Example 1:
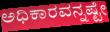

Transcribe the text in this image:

ಅಧಿಕಾರವನ್ನಷ್ಟೇ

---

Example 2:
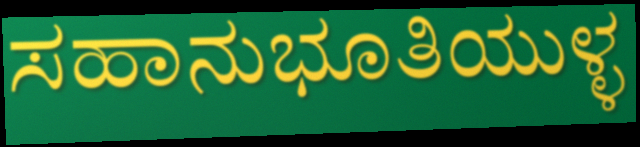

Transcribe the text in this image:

ಸಹಾನುಭೂತಿಯುಳ್ಳ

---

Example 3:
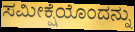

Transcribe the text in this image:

ಸಮೀಕ್ಷೆಯೊಂದನ್ನು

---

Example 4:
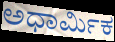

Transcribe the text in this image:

ಅಧಾರ್ಮಿಕ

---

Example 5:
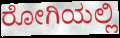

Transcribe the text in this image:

ರೋಗಿಯಲ್ಲಿ